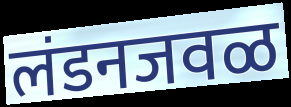
लंडनजवळ